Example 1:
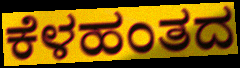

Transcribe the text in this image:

ಕೆಳಹಂತದ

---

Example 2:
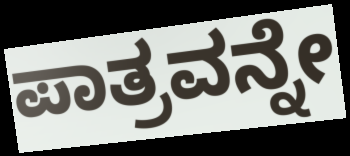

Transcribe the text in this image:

ಪಾತ್ರವನ್ನೇ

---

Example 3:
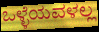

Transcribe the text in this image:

ಒಳ್ಳೆಯವಳಲ್ಲ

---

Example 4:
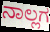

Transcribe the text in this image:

ನಾಲ್ಲಗ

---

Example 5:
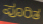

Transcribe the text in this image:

ಪೂರಿತ